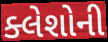
ક્લેશોની